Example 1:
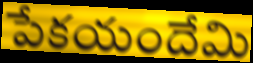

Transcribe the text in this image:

పేకయందేమి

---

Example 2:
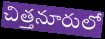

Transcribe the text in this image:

చిత్తనూరులో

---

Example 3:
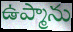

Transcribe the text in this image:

ఉప్మాను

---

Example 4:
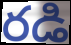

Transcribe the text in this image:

రడి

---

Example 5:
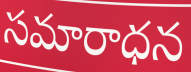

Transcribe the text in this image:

సమారాధన